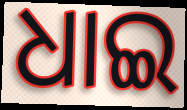
ଧାଇ